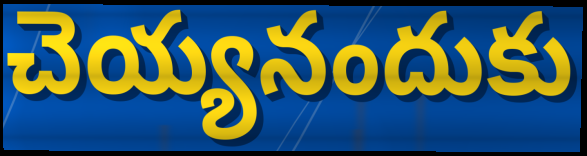
చెయ్యనందుకు